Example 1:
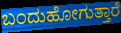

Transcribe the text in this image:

ಬಂದುಹೋಗುತ್ತಾರೆ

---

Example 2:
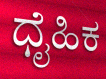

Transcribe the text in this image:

ಧೈಹಿಕ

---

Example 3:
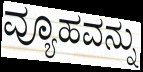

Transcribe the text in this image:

ವ್ಯೂಹವನ್ನು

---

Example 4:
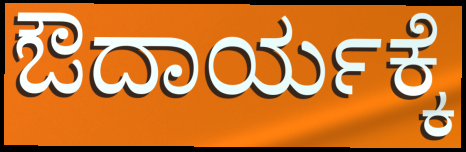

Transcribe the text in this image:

ಔದಾರ್ಯಕ್ಕೆ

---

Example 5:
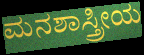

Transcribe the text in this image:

ಮನಶಾಸ್ತ್ರೀಯ